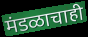
मंडळाचाही